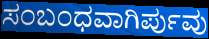
ಸಂಬಂಧವಾಗಿರ್ಪುವು